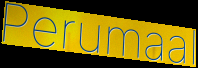
Perumaal